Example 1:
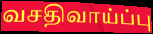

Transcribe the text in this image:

வசதிவாய்ப்பு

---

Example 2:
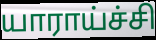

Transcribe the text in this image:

யாராய்ச்சி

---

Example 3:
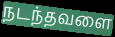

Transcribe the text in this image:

நடந்தவளை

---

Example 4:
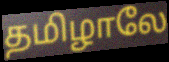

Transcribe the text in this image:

தமிழாலே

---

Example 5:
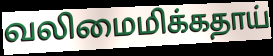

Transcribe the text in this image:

வலிமைமிக்கதாய்